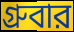
গ্রুবার